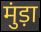
मुंड़ा